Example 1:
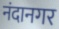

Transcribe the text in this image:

नंदानगर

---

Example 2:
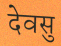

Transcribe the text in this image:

देवसु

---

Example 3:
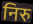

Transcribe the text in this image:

निरु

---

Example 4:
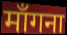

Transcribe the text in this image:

माँगना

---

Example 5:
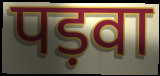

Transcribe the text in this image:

पड़वा